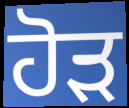
ਹੋੜ